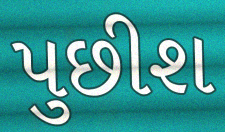
પુછીશ